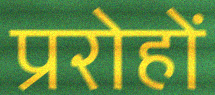
प्ररोहों